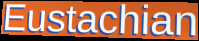
Eustachian